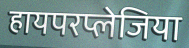
हायपरप्लेजिया